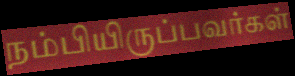
நம்பியிருப்பவர்கள்